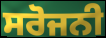
ਸਰੋਜਨੀ